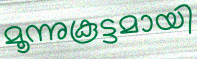
മൂന്നുകൂട്ടമായി